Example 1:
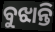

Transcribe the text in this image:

ବୁଝାନ୍ତି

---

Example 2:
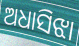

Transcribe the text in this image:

ଅଧାସିଝା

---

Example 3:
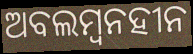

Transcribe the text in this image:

ଅବଲମ୍ବନହୀନ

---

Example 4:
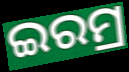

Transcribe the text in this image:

ଇରମ୍ର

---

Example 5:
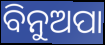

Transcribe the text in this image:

ବିନୁଅପା